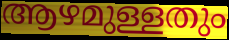
ആഴമുള്ളതും